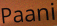
Paani